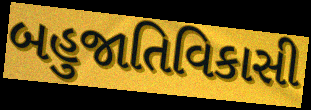
બહુજાતિવિકાસી